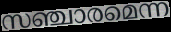
സഞ്ചാരമെന്ന